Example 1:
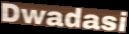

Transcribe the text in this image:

Dwadasi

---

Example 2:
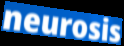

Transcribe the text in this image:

neurosis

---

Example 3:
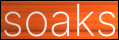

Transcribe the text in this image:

soaks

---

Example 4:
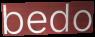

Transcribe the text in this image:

bedo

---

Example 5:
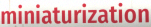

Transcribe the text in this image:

miniaturization